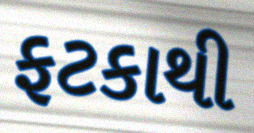
ફટકાથી